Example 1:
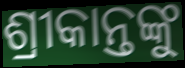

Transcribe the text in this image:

ଶ୍ରୀକାନ୍ତଙ୍କୁ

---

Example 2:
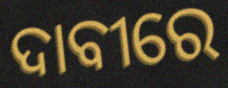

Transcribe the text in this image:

ଦାବୀରେ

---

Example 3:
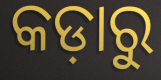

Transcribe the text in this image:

କଡ଼ାରୁ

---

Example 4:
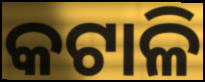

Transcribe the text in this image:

କଟାଳି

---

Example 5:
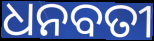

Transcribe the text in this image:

ଧନବତୀ